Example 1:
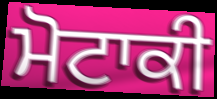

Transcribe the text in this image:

ਮੋਟਾਕੀ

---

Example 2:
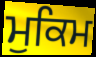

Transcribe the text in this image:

ਮੁਕਿਮ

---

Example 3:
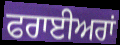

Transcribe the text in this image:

ਫਰਾਈਅਰਾਂ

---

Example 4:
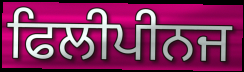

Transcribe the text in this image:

ਫਿਲੀਪੀਨਜ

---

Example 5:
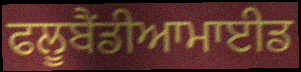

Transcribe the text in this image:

ਫਲੂਬੈਂਡੀਆਮਾਈਡ